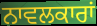
ਨਾਵਲਕਾਰਾਂ